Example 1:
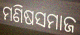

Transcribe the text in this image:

ମଣିଷସମାଜ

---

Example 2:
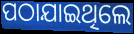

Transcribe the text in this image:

ପଠାଯାଇଥିଲେ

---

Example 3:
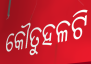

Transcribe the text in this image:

କୌତୁହଳଟି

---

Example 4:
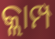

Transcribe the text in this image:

କ୍ଲାମ୍ପ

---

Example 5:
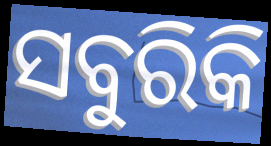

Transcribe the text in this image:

ସବୁରିକି